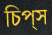
চিপ্‌স